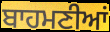
ਬਾਹਮਣੀਆਂ